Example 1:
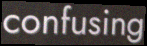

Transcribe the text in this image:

confusing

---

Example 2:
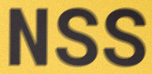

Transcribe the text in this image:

NSS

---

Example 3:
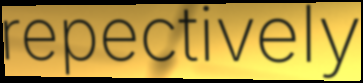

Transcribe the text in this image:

repectively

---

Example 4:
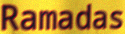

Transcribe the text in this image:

Ramadas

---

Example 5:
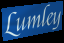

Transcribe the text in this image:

Lumley